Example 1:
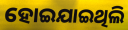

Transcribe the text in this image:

ହୋଇଯାଇଥିଲି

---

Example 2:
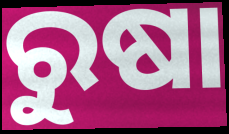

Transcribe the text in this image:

ରୁଷା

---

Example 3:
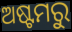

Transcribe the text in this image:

ଅଷ୍ଟମରୁ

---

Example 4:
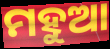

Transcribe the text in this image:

ମହୁଆ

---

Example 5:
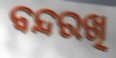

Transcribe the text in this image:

ବନ୍ଦରଖି